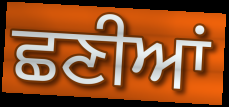
ਛਣੀਆਂ